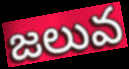
జలువ